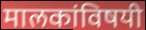
मालकांविषयी